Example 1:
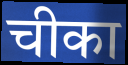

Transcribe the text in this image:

चीका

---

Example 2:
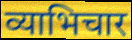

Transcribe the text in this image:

व्याभिचार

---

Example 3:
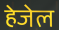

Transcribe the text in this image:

हेजेल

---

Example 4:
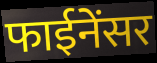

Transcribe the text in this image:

फाईनेंसर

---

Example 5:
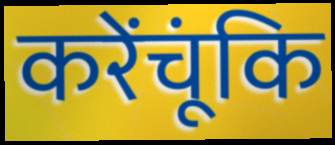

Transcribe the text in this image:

करेंचूंकि